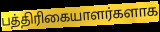
பத்திரிகையாளர்களாக